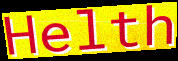
Helth